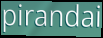
pirandai